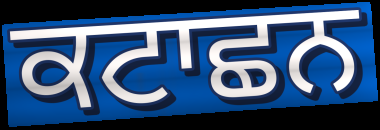
ਕਟਾਛਨ